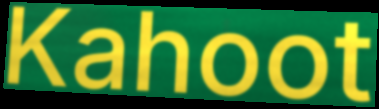
Kahoot